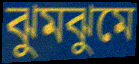
ঝুমঝুমে